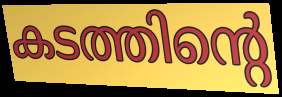
കടത്തിന്റെ